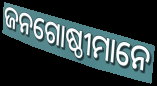
ଜନଗୋଷ୍ଠୀମାନେ